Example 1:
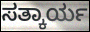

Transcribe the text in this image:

ಸತ್ಕಾರ್ಯ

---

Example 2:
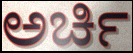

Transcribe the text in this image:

ಅರ್ಚಿ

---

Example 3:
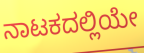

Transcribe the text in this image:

ನಾಟಕದಲ್ಲಿಯೇ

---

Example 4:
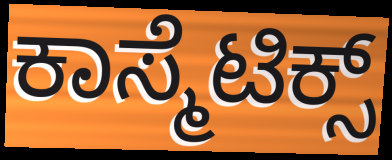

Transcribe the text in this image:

ಕಾಸ್ಮೆಟಿಕ್ಸ್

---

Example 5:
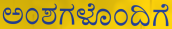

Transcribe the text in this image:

ಅಂಶಗಳೊಂದಿಗೆ